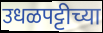
उधळपट्टीच्या